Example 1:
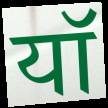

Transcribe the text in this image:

यॉ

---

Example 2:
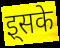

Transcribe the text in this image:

इ्सके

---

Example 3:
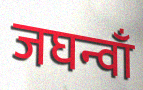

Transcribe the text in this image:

जघन्वाँ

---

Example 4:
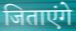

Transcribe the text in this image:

जिताएंगे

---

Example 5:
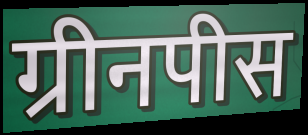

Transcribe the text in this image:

ग्रीनपीस